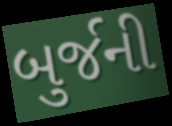
બુર્જની